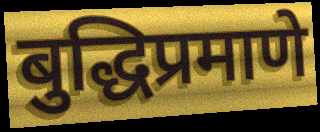
बुद्धिप्रमाणे